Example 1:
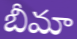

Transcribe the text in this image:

బీమా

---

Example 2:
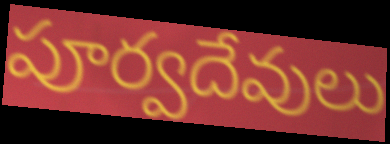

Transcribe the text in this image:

పూర్వదేవులు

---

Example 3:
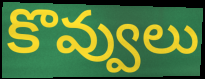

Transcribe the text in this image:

కొవ్వులు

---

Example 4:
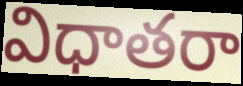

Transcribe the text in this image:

విధాతరా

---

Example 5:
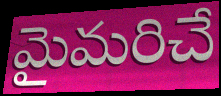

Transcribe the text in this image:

మైమరిచే